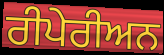
ਰੀਪੇਰੀਅਨ